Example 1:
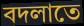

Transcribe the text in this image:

বদলাতে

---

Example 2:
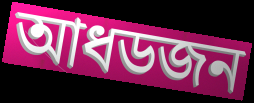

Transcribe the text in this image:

আধডজন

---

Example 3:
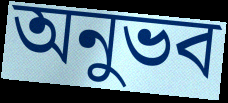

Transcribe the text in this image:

অনুভব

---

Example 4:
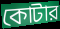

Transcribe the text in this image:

কোটার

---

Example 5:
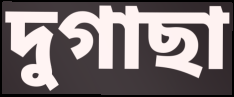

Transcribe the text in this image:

দুগাছা